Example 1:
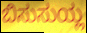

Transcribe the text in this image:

ಬಿಸುಸುಯ್ಲ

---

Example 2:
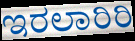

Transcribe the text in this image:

ಇರಲಾರಿರಿ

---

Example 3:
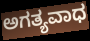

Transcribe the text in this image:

ಅಗತ್ಯವಾಧ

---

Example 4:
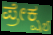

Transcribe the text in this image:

ಪ್ರೇಕ್ಷ್ಯ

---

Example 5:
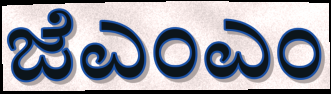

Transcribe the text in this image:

ಜೆಎಂಎಂ